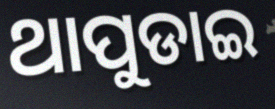
ଥାପୁଡାଇ